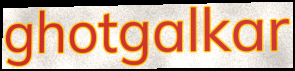
ghotgalkar